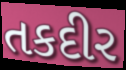
તકદીર